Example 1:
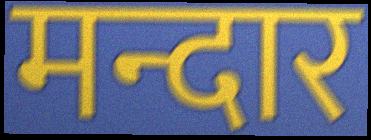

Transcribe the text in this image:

मन्दार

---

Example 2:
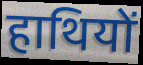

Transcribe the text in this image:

हाथियों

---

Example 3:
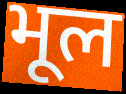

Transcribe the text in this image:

भूल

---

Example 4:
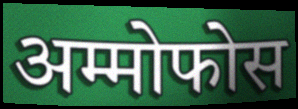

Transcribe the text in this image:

अम्मोफोस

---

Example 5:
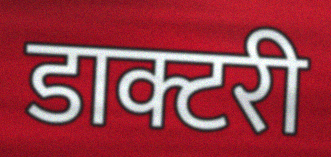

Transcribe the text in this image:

डाक्टरी